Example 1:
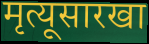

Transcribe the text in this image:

मृत्यूसारखा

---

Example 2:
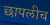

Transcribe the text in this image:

छापलीच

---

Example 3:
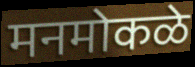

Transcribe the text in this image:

मनमोकळे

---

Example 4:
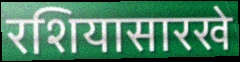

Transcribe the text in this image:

रशियासारखे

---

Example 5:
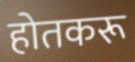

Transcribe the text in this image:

होतकरू